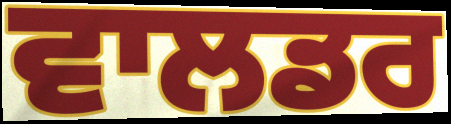
ਵਾਲਡਰ